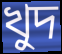
খুদ